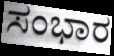
ಸಂಭಾರ